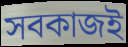
সবকাজই